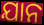
ଯାନ